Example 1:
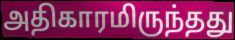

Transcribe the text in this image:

அதிகாரமிருந்தது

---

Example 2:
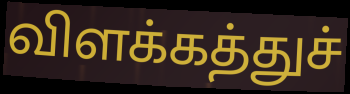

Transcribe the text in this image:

விளக்கத்துச்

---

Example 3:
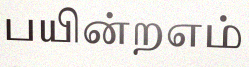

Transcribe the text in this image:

பயின்றஎம்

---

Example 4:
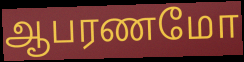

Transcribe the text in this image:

ஆபரணமோ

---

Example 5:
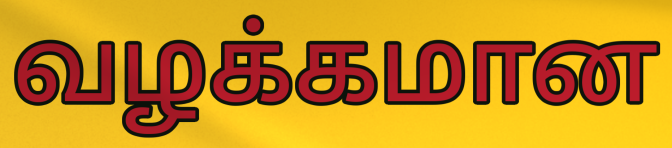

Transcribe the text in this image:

வழக்கமான